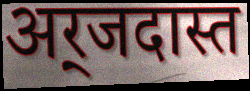
अर्जदास्त